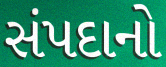
સંપદાનો